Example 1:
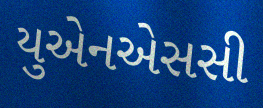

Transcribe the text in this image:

યુએનએસસી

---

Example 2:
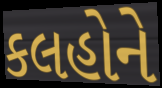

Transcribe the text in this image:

કલહોને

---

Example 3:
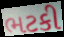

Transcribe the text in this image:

ભટકી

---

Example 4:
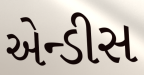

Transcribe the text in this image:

એન્ડીસ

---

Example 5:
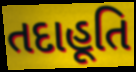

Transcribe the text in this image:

તદાહૂતિ